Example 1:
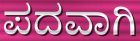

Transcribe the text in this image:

ಪದವಾಗಿ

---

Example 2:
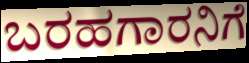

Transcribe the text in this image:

ಬರಹಗಾರನಿಗೆ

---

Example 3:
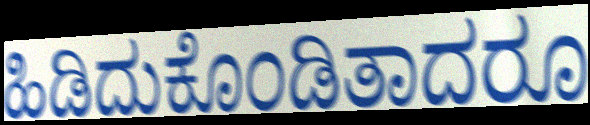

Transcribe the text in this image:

ಹಿಡಿದುಕೊಂಡಿತಾದರೂ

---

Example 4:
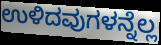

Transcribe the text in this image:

ಉಳಿದವುಗಳನ್ನೆಲ್ಲ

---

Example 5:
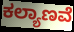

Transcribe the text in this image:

ಕಲ್ಯಾಣವೆ